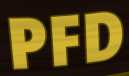
PFD